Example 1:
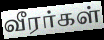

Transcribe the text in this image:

வீரர்கள்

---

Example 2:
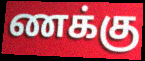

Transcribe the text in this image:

ணக்கு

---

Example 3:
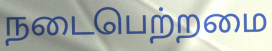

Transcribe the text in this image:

நடைபெற்றமை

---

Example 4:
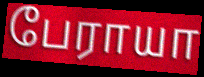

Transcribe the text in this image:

பேராயா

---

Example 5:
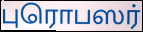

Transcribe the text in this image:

புரொபஸர்